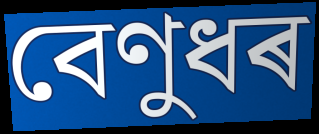
বেণুধৰ